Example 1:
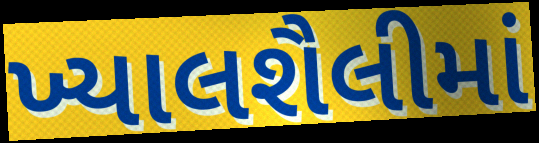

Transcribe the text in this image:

ખ્યાલશૈલીમાં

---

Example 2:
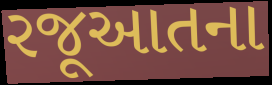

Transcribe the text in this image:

રજૂઆતના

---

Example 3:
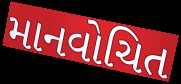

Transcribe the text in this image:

માનવોચિત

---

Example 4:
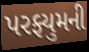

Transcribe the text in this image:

પરફ્યુમની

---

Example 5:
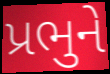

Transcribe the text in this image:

પ્રભુને